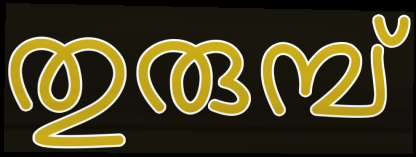
തുരുമ്പ്